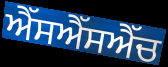
ਐੱਸਐੱਸਐੱਚ